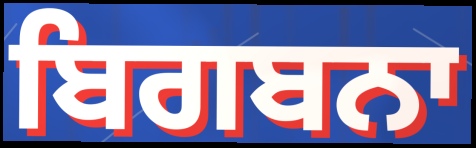
ਬਿਗਬਨਾ